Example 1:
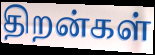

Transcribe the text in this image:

திறன்கள்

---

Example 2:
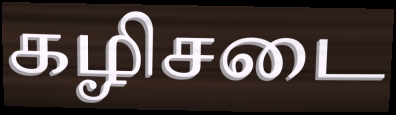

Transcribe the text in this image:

கழிசடை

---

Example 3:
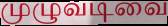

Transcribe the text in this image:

முழுவடிவை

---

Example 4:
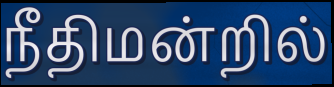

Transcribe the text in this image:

நீதிமன்றில்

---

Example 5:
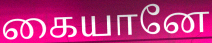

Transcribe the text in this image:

கையானே